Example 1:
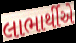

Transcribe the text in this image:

લાભાર્થીએ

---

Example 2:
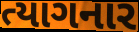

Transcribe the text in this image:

ત્યાગનાર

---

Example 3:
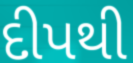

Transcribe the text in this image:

દીપથી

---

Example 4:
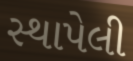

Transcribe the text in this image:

સ્‍થાપેલી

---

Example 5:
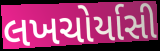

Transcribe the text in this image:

લખચોર્યાસી